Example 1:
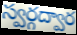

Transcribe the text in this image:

స్వర్గద్వార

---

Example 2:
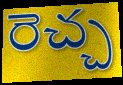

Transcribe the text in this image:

రెచ్చ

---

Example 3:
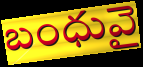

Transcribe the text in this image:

బంధువై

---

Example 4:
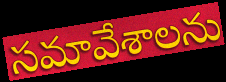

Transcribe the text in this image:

సమావేశాలను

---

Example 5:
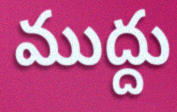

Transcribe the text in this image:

ముద్దు